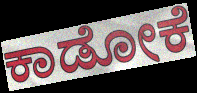
ಕಾಡೋಕೆ